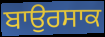
ਬਾਉਰਸਾਕ